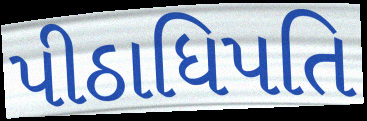
પીઠાધિપતિ